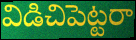
విడిచిపెట్టరా